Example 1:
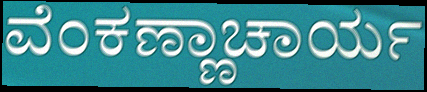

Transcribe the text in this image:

ವೆಂಕಣ್ಣಾಚಾರ್ಯ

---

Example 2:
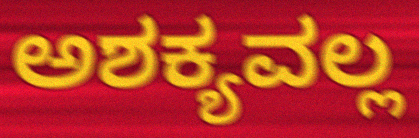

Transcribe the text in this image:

ಅಶಕ್ಯವಲ್ಲ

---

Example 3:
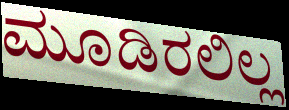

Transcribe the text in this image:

ಮೂಡಿರಲಿಲ್ಲ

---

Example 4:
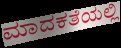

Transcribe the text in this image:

ಮಾದಕತೆಯಲ್ಲಿ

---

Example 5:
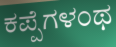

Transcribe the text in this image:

ಕಪ್ಪೆಗಳಂಥ